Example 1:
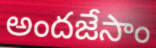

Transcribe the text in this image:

అందజేసాం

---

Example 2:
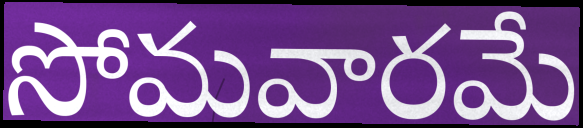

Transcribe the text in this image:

సోమవారమే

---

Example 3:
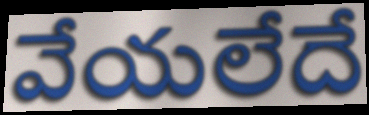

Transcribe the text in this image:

వేయలేదే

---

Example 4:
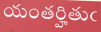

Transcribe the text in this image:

యంతర్హితుఁ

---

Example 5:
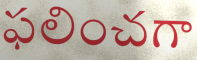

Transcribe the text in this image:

ఫలించగా